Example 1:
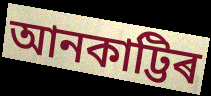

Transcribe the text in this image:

আনকাট্টিৰ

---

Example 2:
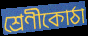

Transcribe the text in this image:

শ্ৰেণীকোঠা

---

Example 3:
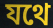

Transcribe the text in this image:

যথে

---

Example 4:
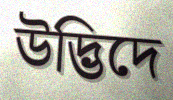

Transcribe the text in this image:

উদ্ভিদে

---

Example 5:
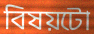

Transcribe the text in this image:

বিষয়টো